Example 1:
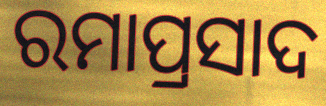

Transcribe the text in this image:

ରମାପ୍ରସାଦ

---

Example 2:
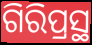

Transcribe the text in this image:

ଗିରିପ୍ରସ୍ଥ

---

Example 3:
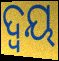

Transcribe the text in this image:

ଦ୍ୱୟ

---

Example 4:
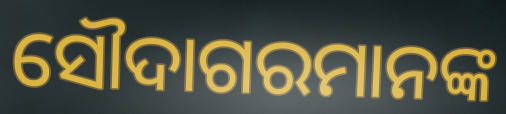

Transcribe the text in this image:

ସୌଦାଗରମାନଙ୍କ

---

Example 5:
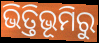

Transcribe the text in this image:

ଭିତ୍ତିଭୂମିରୁ